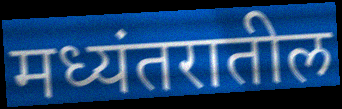
मध्यंतरातील